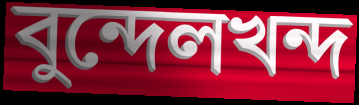
বুন্দেলখন্দ